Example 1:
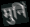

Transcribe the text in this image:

मुनिं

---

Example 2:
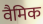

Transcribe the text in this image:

वैमिक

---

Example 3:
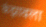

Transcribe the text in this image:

कंझावला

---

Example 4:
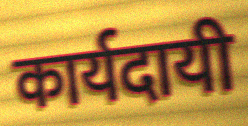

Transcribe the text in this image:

कार्यदायी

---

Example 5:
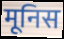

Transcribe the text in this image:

मूनिस